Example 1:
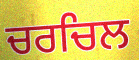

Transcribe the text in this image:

ਚਰਚਿਲ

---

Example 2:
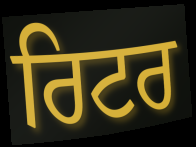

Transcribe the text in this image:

ਰਿਟਰ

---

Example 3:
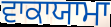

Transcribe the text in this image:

ਵਾਕਾਯਾਮਾ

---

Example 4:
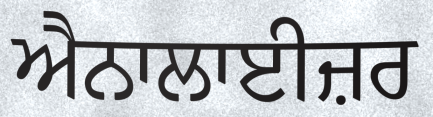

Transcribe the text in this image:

ਐਨਾਲਾਈਜ਼ਰ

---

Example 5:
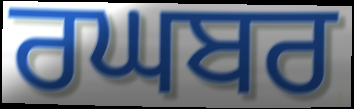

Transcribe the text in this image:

ਰਘਬਰ